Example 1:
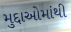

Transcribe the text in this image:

મુદ્દાઓમાંથી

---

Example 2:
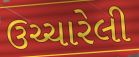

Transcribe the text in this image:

ઉચ્ચારેલી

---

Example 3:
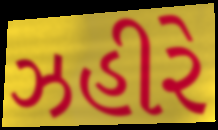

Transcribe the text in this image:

ઝહીરે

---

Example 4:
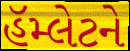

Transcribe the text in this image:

હૅમ્લેટને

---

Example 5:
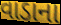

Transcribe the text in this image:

વાડાના